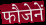
फौजेनें